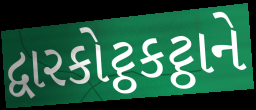
દ્વારકોટ્ઠકટ્ઠાને